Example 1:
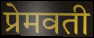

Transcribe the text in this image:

प्रेमवती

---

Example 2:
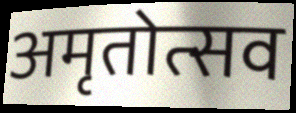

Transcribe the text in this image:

अमृतोत्सव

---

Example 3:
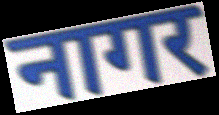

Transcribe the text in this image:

नागर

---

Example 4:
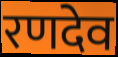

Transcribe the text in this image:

रणदेव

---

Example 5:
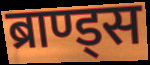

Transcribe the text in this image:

ब्राण्‍ड्स